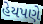
હેયપણે